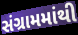
સંગ્રામમાંથી